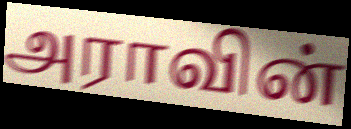
அராவின்